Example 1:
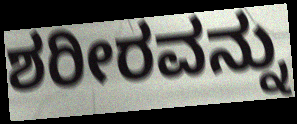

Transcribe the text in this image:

ಶರೀರವನ್ನು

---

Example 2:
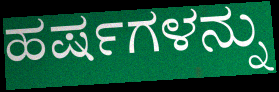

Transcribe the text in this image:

ಹರ್ಷಗಳನ್ನು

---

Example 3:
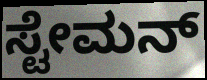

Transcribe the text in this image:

ಸ್ಟೇಮನ್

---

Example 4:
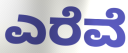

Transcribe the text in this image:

ಎರೆವೆ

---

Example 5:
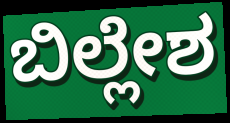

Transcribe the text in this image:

ಬಿಲ್ಲೇಶ